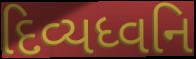
દિવ્યધ્વનિ